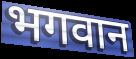
भगवान